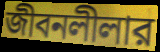
জীবনলীলার